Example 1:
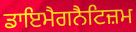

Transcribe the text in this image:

ਡਾਇਮੈਗਨੈਟਿਜ਼ਮ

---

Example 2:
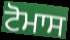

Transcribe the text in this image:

ਟੋਮਾਸ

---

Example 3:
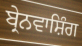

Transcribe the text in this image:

ਬ੍ਰੇਨਵਾਸ਼ਿੰਗ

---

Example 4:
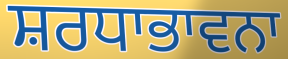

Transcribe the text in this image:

ਸ਼ਰਧਾਭਾਵਨਾ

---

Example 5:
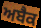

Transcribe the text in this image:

ਅਬੈਕ